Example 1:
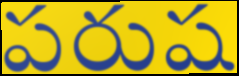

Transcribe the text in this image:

పరుష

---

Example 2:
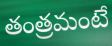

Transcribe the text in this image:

తంత్రమంటే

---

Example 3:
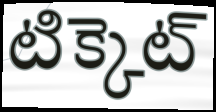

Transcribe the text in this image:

టిక్కెట్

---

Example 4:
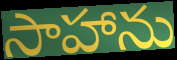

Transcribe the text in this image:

సాహాను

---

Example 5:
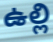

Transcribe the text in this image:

ఉల్లి